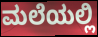
ಮಲೆಯಲ್ಲಿ